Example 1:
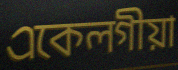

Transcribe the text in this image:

একেলগীয়া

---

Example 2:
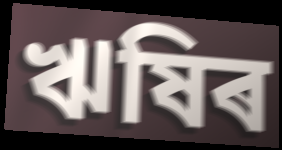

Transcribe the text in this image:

ঋষিৰ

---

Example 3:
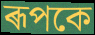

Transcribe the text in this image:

ৰূপকে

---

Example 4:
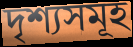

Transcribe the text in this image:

দৃশ্যসমূহ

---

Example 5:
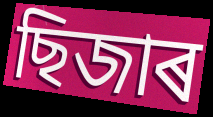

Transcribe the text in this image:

ছিজাৰ